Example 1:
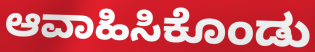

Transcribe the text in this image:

ಆವಾಹಿಸಿಕೊಂಡು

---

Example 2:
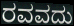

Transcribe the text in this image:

ರವವದು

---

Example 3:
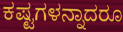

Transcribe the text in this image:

ಕಷ್ಟಗಳನ್ನಾದರೂ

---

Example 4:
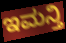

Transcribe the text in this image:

ಇಮನ್ತಿ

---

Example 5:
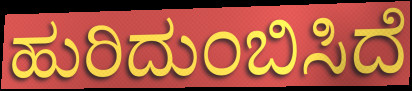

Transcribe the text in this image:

ಹುರಿದುಂಬಿಸಿದೆ